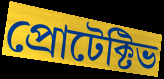
প্রোটেক্টিভ